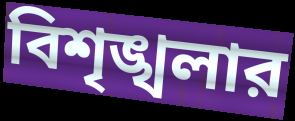
বিশৃঙ্খলার